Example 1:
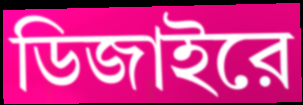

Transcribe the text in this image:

ডিজাইরে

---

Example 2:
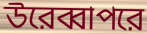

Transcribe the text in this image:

উরেব্বাপরে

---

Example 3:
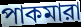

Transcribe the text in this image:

পাকমারা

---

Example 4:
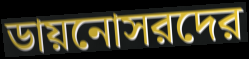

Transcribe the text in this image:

ডায়নোসরদের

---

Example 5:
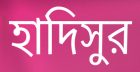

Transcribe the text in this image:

হাদিসুর